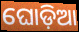
ଘୋଡ଼ିଆ